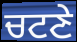
ਚਟਣੇ